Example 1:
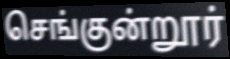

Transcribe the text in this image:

செங்குன்றூர்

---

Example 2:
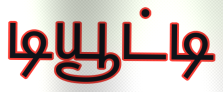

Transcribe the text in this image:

டியூட்டி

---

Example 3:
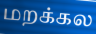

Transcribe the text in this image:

மறக்கல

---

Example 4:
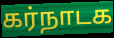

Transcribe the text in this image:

கர்நாடக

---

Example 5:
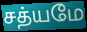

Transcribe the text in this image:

சத்யமே